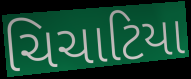
ચિચાટિયા